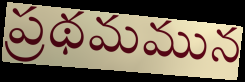
ప్రథమమున